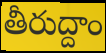
తీరుద్దాం